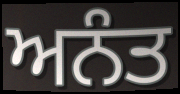
ਅਨੰਤ